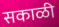
सकाळी